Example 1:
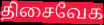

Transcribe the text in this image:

திசைவேக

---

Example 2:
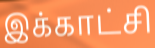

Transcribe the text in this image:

இக்காட்சி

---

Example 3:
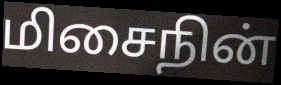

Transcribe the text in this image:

மிசைநின்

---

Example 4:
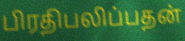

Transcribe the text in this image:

பிரதிபலிப்பதன்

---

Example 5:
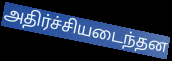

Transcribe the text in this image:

அதிர்ச்சியடைந்தன